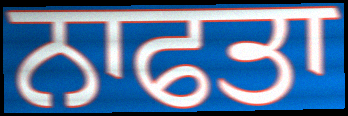
ਨਾਫਤਾ